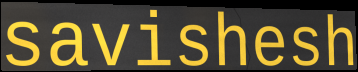
savishesh